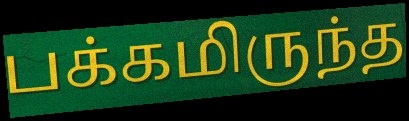
பக்கமிருந்த